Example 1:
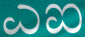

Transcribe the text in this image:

ಎಐ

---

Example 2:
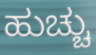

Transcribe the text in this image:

ಹುಚ್ಚು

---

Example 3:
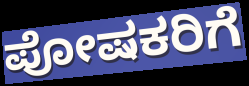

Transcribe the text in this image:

ಪೋಷಕರಿಗೆ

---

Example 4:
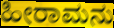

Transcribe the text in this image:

ಹೀರಾಮನು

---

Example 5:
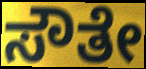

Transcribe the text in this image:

ಸೌತೇ